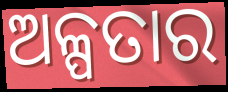
ଅଳ୍ପତାର